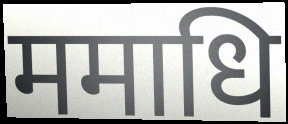
ममाधि